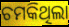
ଚମକିଥିଲା